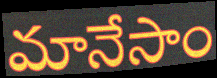
మానేసాం